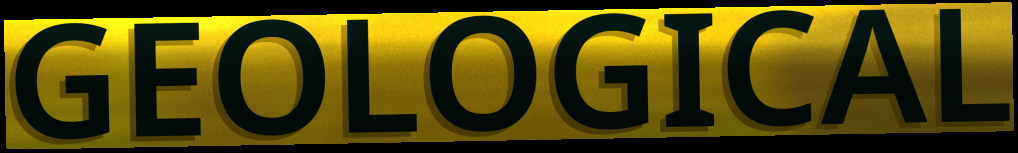
GEOLOGICAL